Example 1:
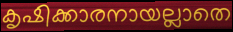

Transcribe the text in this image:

കൃഷിക്കാരനായല്ലാതെ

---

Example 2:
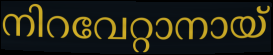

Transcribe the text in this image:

നിറവേറ്റാനായ്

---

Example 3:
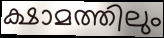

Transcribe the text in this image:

ക്ഷാമത്തിലും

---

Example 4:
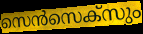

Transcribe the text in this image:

സെൻസെക്സും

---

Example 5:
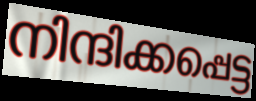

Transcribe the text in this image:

നിന്ദിക്കപ്പെട്ട